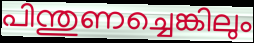
പിന്തുണച്ചെങ്കിലും